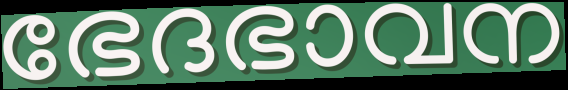
ഭേദഭാവന